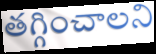
తగ్గించాలని